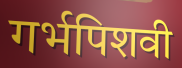
गर्भपिशवी